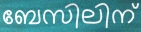
ബേസിലിന്